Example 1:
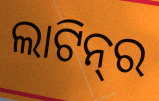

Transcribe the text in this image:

ଲାଟିନ୍‌ର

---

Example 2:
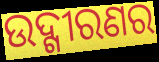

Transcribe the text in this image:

ଉଦ୍ଗୀରଣର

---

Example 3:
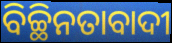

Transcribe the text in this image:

ବିଚ୍ଛିନତାବାଦୀ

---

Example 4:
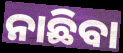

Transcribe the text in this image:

ନାଛିବା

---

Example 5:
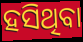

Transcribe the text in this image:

ହସିଥିବା